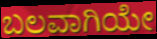
ಬಲವಾಗಿಯೇ